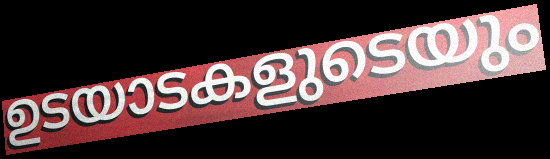
ഉടയാടകളുടെയും